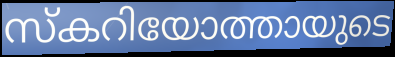
സ്കറിയോത്തായുടെ